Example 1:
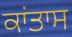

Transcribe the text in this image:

ਕਾਂਤਾਸ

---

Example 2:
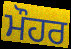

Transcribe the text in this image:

ਮੌਹਰ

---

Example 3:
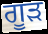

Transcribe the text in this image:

ਗੂੜ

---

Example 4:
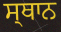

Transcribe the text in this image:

ਸ੍ਥਾਨ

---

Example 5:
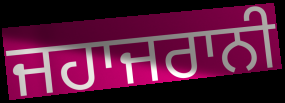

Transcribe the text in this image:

ਜਹਾਜਰਾਨੀ